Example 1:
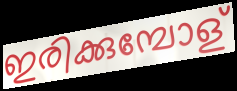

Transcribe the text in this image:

ഇരിക്കുമ്പോള്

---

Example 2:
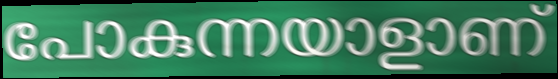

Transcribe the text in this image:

പോകുന്നയാളാണ്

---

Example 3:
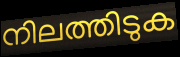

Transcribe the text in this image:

നിലത്തിടുക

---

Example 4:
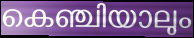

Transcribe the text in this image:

കെഞ്ചിയാലും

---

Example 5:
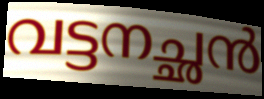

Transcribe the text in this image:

വട്ടനച്ഛൻ